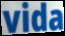
vida